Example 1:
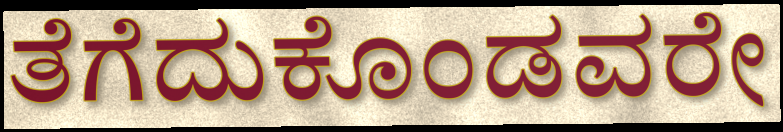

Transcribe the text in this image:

ತೆಗೆದುಕೊಂಡವರೇ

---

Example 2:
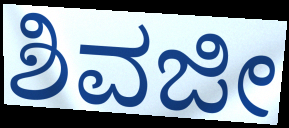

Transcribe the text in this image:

ಶಿವಜೀ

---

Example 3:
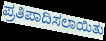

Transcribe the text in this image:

ಪ್ರತಿಪಾದಿಸಲಾಯಿತು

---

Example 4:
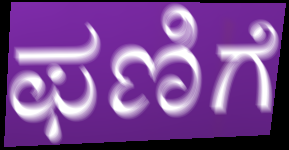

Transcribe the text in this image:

ಫಣಿಗೆ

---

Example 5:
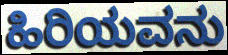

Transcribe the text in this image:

ಹಿರಿಯವನು